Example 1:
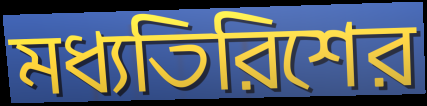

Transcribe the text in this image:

মধ্যতিরিশের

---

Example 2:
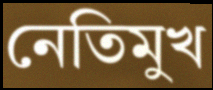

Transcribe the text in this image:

নেতিমুখ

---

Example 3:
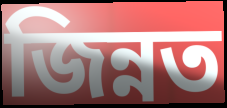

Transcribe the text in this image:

জিন্নত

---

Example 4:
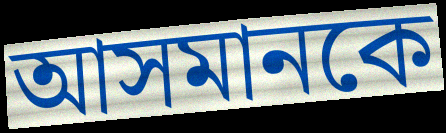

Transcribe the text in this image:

আসমানকে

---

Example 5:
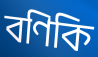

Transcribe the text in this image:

বণিকি